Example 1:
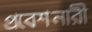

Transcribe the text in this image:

প্রবেশনারী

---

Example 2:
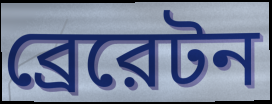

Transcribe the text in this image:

ব্রেরেটন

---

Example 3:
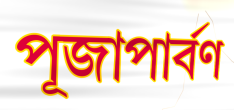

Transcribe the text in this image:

পূজাপার্বণ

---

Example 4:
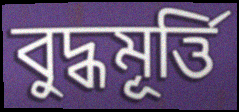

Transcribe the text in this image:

বুদ্ধমূর্ত্তি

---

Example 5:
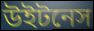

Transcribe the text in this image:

উইটনেস